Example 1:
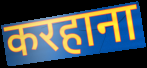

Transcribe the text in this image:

करहाना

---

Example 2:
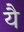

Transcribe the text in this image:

यै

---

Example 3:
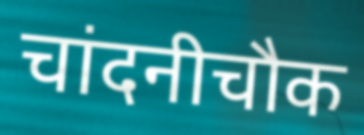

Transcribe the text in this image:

चांदनीचौक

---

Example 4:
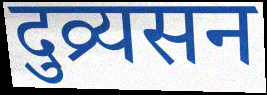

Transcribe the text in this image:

दुव्र्यसन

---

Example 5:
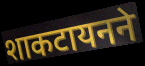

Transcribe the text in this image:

शाकटायनने